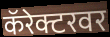
कॅरेक्टरवर